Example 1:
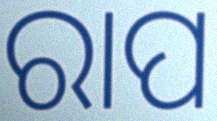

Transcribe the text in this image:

ରାପ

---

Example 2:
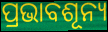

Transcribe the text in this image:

ପ୍ରଭାବଶୂନ୍ୟ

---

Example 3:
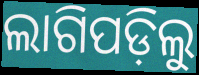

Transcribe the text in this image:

ଲାଗିପଡ଼ିଲୁ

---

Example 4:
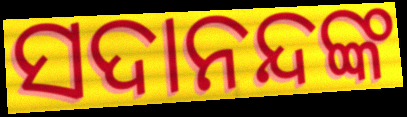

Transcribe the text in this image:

ସଦାନନ୍ଦଙ୍କ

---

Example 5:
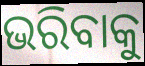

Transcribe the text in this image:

ଭରିବାକୁ